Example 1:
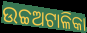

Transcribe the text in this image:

ଉଚ୍ଚଅଟାଳିକା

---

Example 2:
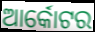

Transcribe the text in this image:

ଆର୍କୋଟର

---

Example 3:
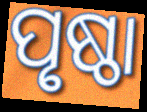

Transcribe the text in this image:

ପୃଷ୍ଠା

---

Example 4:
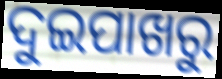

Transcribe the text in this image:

ଦୁଇପାଖରୁ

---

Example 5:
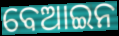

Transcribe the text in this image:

ବେଆଇନ